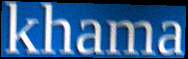
khama